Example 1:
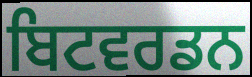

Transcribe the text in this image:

ਬਿਟਵਰਡਨ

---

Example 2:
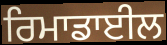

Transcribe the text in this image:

ਰਿਮਾਡਾਈਲ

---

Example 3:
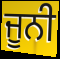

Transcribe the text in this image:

ਜੂਨੀ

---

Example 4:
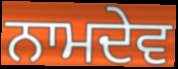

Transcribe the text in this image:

ਨਾਮਦੇਵ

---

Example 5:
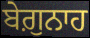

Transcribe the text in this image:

ਬੇਗ਼ੁਨਾਹ